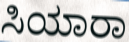
ಸಿಯಾರಾ